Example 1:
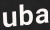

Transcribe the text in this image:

uba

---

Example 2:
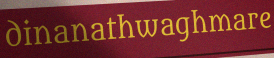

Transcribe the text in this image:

dinanathwaghmare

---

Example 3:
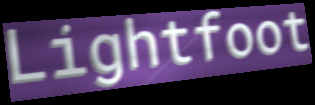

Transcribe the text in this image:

Lightfoot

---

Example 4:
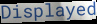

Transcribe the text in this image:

Displayed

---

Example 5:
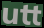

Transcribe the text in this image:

utt